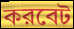
করবেট